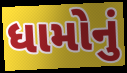
ધામોનું